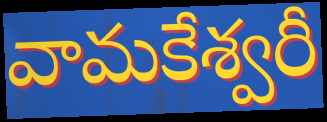
వామకేశ్వరీ